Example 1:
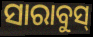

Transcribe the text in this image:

ସାରାବୁସ୍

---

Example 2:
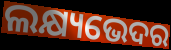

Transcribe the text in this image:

ଲକ୍ଷ୍ୟଭେଦର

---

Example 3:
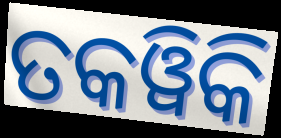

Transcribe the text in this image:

ତକୱିକି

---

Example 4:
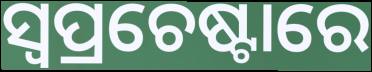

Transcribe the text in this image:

ସ୍ଵପ୍ରଚେଷ୍ଟାରେ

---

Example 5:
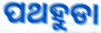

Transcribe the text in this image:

ପଥହୁଡା